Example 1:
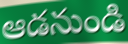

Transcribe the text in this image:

ఆడనుండి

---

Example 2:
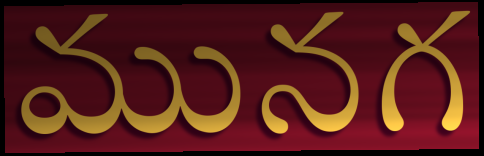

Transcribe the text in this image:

మునగ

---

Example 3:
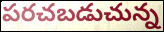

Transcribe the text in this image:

పరచబడుచున్న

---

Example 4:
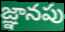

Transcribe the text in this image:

జ్ఞానపు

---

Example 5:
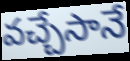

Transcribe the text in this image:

వచ్చేసానే